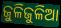
ଜୁଳିଜୁଳିଆ